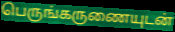
பெருங்கருணையுடன்